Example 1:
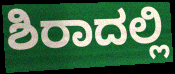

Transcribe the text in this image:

ಶಿರಾದಲ್ಲಿ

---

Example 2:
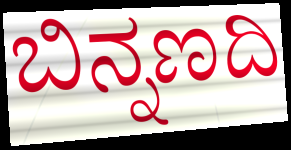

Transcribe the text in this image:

ಬಿನ್ನಣದಿ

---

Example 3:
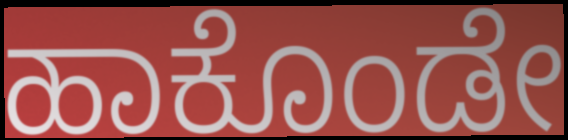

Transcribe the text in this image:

ಹಾಕೊಂಡೇ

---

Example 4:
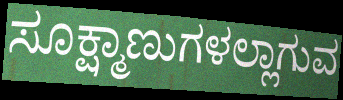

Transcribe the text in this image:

ಸೂಕ್ಷ್ಮಾಣುಗಳಲ್ಲಾಗುವ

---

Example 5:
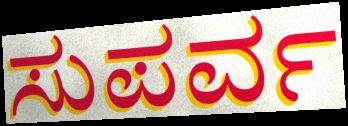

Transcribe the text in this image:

ಸುಪರ್ವ